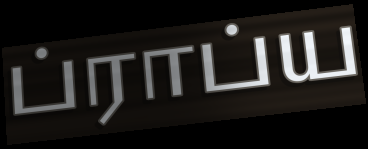
ப்ராப்ய